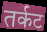
तर्कट